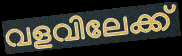
വളവിലേക്ക്